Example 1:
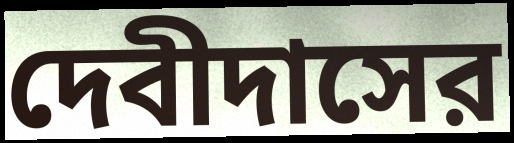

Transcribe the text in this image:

দেবীদাসের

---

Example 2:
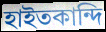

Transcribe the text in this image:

হাইতকান্দি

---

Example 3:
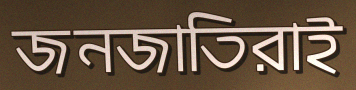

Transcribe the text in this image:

জনজাতিরাই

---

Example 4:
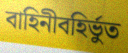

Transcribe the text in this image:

বাহিনীবহির্ভুত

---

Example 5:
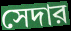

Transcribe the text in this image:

সেদার